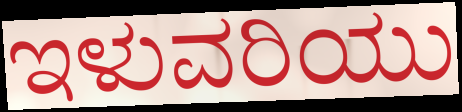
ಇಳುವರಿಯು